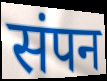
संपन